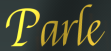
Parle